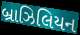
બ્રાઝિલિયન